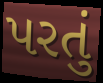
પરતું